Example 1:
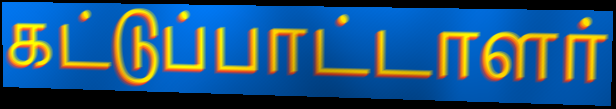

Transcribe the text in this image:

கட்டுப்பாட்டாளர்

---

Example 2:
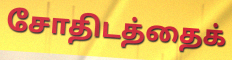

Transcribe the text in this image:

சோதிடத்தைக்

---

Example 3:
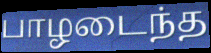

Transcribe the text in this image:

பாழடைந்த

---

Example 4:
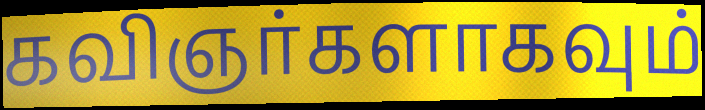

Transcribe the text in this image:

கவிஞர்களாகவும்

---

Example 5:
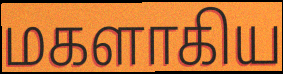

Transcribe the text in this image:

மகளாகிய